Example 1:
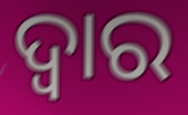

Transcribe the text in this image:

ଦ୍ୱାର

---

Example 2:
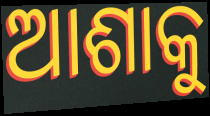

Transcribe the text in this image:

ଆଶାକୁ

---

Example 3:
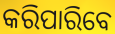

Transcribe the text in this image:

କରିପାରିବେ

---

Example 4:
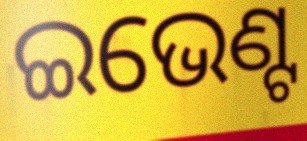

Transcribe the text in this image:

ଇଭେଣ୍ଟ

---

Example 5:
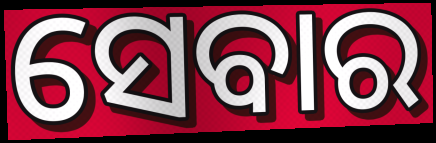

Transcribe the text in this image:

ସେବାର